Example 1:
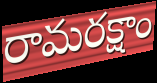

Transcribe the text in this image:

రామరక్షాం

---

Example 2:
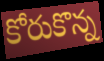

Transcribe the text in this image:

కోరుకొన్న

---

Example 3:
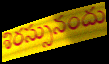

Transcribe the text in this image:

శిరస్సునందు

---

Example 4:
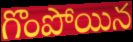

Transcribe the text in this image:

గొంపోయిన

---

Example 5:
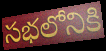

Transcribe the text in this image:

సభలోనికి